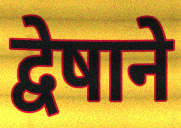
द्वेषाने